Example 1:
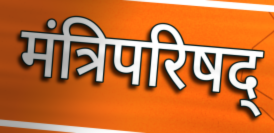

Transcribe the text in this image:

मंत्रिपरिषद्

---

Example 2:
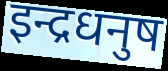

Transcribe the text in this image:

इन्‍द्रधनुष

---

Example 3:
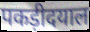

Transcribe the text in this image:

पकड़ीदयाल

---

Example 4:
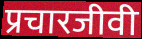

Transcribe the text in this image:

प्रचारजीवी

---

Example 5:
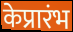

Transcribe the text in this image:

केप्रारंभ